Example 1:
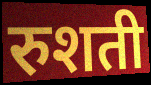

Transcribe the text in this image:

रुशती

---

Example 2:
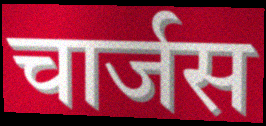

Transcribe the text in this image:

चार्जस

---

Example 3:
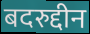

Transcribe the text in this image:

बदरुद्दीन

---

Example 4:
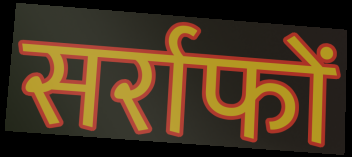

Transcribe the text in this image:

सर्राफों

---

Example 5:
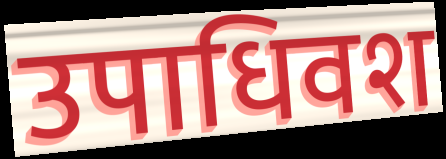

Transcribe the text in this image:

उपाधिवश